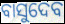
ବାସୁଦେବ